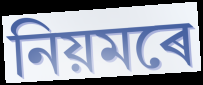
নিয়মৰে